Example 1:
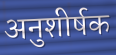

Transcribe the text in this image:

अनुशीर्षक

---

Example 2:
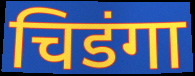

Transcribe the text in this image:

चिडंगा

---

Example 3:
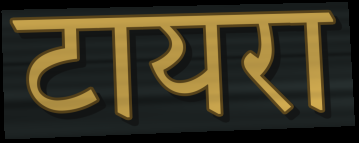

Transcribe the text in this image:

टायरा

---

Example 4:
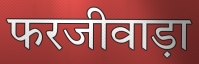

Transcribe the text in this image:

फरजीवाड़ा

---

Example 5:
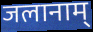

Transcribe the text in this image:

जलानाम्